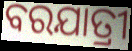
ବରଯାତ୍ରୀ